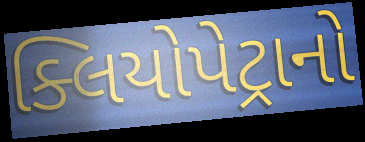
ક્લિયોપેટ્રાનો